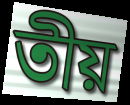
তীয়